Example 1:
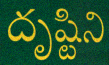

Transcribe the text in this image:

దృష్టిని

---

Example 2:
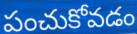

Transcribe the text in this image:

పంచుకోవడం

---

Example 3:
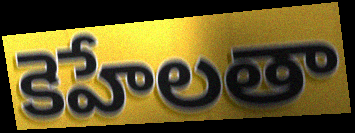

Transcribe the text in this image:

కెహేలతా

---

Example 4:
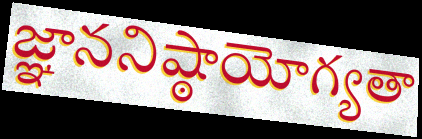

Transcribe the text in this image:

జ్ఞాననిష్ఠాయోగ్యతా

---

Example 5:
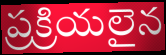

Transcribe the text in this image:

ప్రక్రియలైన